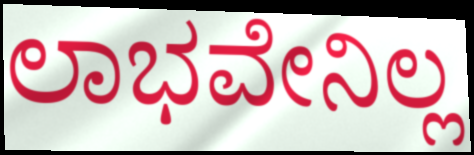
ಲಾಭವೇನಿಲ್ಲ